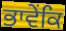
ਭਾਵੇਂਕਿ